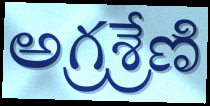
అగ్రశ్రేణి